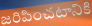
జరిపించటానికి